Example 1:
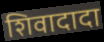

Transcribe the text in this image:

शिवादादा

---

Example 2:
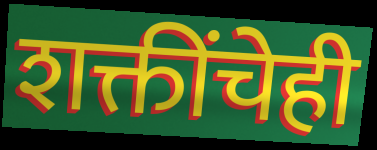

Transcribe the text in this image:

शक्तींचेही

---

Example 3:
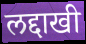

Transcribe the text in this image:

लद्दाखी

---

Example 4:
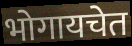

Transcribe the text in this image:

भोगायचेत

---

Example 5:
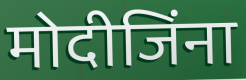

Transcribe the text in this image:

मोदीजिंना